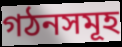
গঠনসমূহ